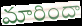
మారిందా